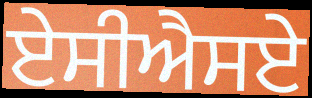
ਏਸੀਐਸਏ